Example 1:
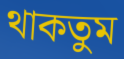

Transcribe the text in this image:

থাকতুম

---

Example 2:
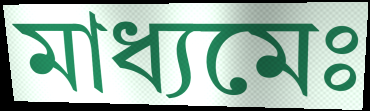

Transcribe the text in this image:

মাধ্যমেঃ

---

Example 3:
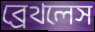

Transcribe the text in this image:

ব্রেথলেস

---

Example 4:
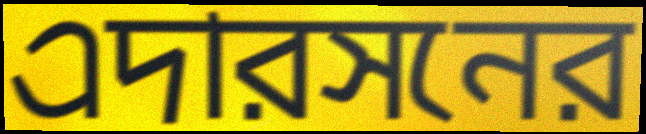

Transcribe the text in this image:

এদারসনের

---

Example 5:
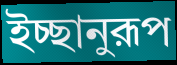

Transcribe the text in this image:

ইচ্ছানুরূপ